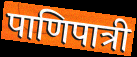
पाणिपात्री